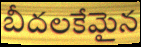
బీదలకేమైన